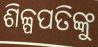
ଶିଳ୍ପପତିଙ୍କୁ